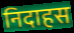
निदाहस